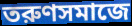
তরুণসমাজে